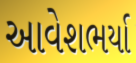
આવેશભર્યા